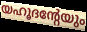
യഹൂദന്റേയും